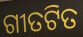
ଗୀତଟିତ